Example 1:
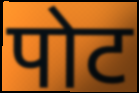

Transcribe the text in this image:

पोट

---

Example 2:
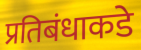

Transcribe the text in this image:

प्रतिबंधाकडे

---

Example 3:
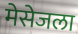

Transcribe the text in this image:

मेसेजला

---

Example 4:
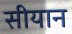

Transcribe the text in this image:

सीयान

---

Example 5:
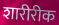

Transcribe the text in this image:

शारीरीक